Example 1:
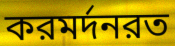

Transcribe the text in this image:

করমর্দনরত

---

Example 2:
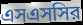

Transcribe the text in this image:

এসএসসির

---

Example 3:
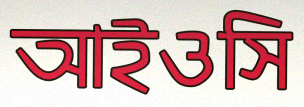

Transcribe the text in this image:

আইওসি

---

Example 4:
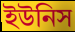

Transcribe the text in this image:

ইউনিস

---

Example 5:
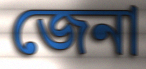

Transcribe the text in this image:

জেনা